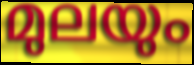
മുലയും